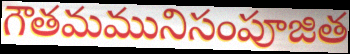
గౌతమమునిసంపూజిత